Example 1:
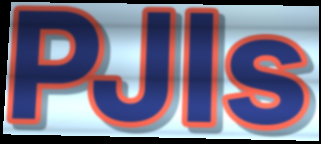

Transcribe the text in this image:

PJIs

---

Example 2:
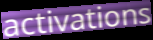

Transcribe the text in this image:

activations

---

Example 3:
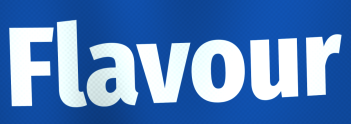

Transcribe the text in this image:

Flavour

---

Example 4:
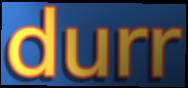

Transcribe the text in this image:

durr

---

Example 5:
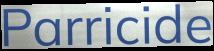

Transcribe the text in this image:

Parricide